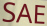
SAE